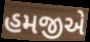
હમજીએ